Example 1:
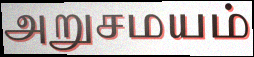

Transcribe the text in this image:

அறுசமயம்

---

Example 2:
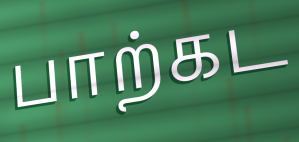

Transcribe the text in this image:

பாற்கட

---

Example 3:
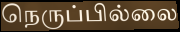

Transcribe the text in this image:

நெருப்பில்லை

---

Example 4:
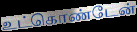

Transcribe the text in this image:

உட்கொண்டேன்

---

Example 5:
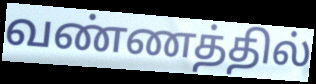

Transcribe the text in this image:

வண்ணத்தில்